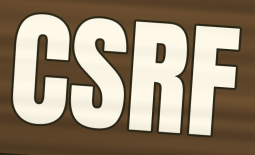
CSRF